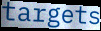
targets